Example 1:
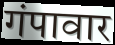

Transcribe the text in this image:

गंपावार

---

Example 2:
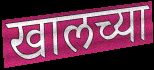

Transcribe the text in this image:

खालच्या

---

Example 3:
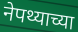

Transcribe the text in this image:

नेपथ्याच्या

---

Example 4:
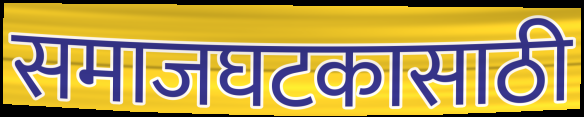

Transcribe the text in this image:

समाजघटकासाठी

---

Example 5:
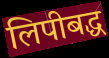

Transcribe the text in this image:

लिपीबद्ध